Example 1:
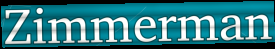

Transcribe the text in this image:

Zimmerman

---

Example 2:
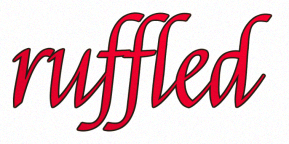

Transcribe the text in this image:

ruffled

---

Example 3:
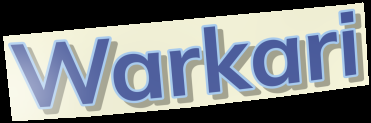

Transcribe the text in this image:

Warkari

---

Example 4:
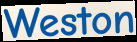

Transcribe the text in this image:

Weston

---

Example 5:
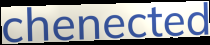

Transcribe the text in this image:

chenected